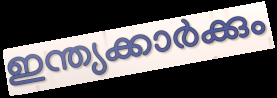
ഇന്ത്യക്കാർക്കും